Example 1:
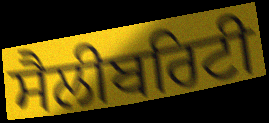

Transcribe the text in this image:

ਸੈਲੀਬਰਿਟੀ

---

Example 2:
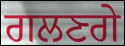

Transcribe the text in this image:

ਗਲਣਗੇ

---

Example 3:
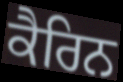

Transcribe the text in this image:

ਕੈਰਿਨ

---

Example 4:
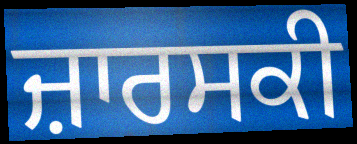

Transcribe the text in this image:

ਜ਼ਾਰਸਕੀ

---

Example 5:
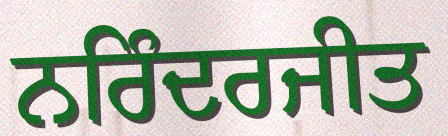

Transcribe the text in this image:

ਨਰਿੰਦਰਜੀਤ